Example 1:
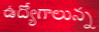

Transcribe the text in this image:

ఉద్యోగాలున్న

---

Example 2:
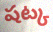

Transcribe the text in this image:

షట్క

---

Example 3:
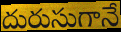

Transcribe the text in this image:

దురుసుగానే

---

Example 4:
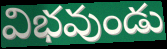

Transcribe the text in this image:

విభవుండు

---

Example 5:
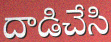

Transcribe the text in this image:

దాడిచేసి